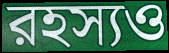
রহস্যও